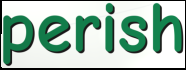
perish